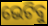
ଭେଟିବୁ